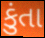
કુંતા